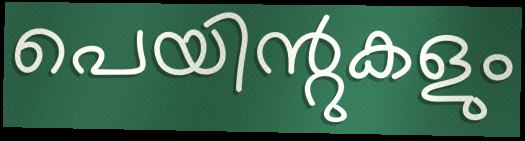
പെയിന്റുകളും